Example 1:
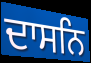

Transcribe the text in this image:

ਦਾਸਨਿ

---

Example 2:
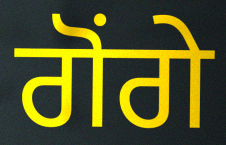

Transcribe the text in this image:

ਗੋਂਗੇ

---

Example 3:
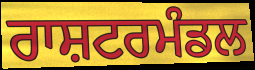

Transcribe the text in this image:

ਰਾਸ਼ਟਰਮੰਡਲ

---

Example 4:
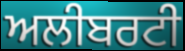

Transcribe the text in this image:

ਅਲੀਬਰਟੀ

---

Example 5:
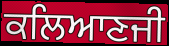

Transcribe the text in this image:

ਕਲਿਆਣਜੀ